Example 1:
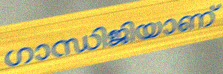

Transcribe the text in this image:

ഗാന്ധിജിയാണ്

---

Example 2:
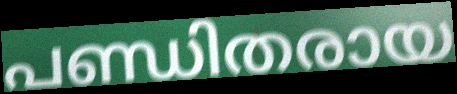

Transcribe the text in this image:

പണ്ഡിതരായ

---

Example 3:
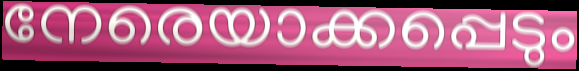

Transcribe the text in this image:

നേരെയാക്കപ്പെടും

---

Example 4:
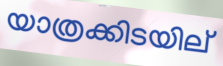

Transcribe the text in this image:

യാത്രക്കിടയില്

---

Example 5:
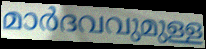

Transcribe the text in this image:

മാർദവവുമുള്ള